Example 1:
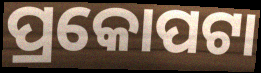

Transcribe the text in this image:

ପ୍ରକୋପଟା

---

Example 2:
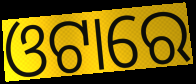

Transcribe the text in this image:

ଓଟାରେ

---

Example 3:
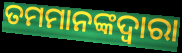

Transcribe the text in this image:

ତମମାନଙ୍କଦ୍ଵାରା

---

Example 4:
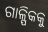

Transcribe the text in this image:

ଗାଳ୍ପିକକୁ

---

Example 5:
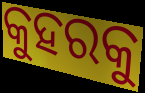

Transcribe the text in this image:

କୁହରକୁ